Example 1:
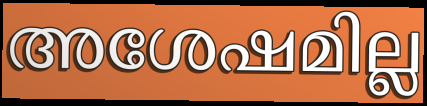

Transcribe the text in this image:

അശേഷമില്ല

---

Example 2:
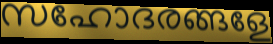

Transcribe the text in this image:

സഹോദരങ്ങളേ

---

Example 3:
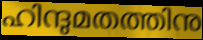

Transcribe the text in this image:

ഹിന്ദുമതത്തിനു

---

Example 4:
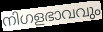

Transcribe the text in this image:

നിഗളഭാവവും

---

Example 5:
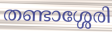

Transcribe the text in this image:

തണ്ടാശ്ശേരി